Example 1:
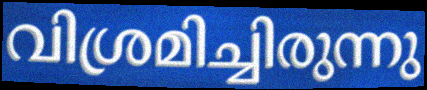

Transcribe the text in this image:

വിശ്രമിച്ചിരുന്നു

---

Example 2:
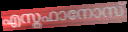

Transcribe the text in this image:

എസ്തഫാനോസ്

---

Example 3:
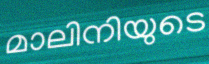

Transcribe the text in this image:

മാലിനിയുടെ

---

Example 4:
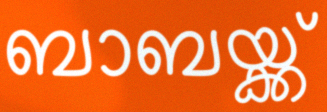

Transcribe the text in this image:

ബാബയ്ക്ക്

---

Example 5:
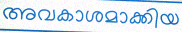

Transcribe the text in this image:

അവകാശമാക്കിയ